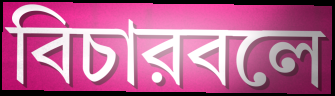
বিচারবলে